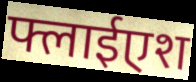
फ्लाईएश